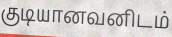
குடியானவனிடம்